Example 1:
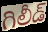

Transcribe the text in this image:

గిలీడ్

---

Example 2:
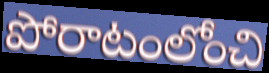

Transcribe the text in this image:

పోరాటంలోంచి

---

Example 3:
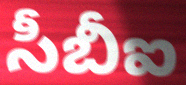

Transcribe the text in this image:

సీబీఐ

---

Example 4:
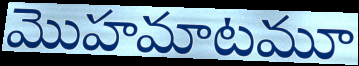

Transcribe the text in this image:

మొహమాటమూ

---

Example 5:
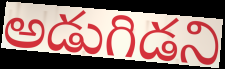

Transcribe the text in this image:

అడుగిడని